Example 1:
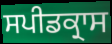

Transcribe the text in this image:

ਸਪੀਡਕ੍ਰਾਸ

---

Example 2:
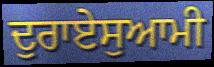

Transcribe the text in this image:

ਦੁਰਾਏਸੁਆਮੀ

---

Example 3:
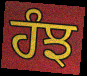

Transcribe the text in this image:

ਹੰਝ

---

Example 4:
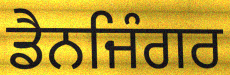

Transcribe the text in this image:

ਡੈਨਜਿੰਗਰ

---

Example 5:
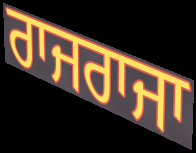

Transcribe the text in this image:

ਰਾਜਰਾਜਾ